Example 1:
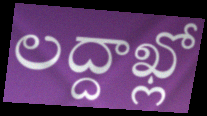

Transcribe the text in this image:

లద్దాఖ్లో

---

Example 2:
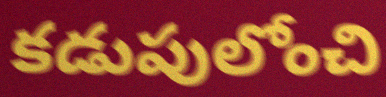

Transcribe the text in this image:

కడుపులోంచి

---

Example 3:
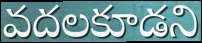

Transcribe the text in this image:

వదలకూడని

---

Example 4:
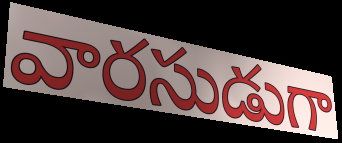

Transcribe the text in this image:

వారసుడుగా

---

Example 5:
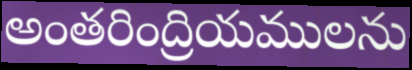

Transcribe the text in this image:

అంతరింద్రియములను